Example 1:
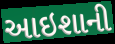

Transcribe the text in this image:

આઇશાની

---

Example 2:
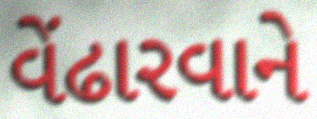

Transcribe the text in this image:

વેંઢારવાને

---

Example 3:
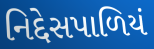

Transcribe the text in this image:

નિદ્દેસપાળિયં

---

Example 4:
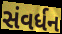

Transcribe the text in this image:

સંવર્ધન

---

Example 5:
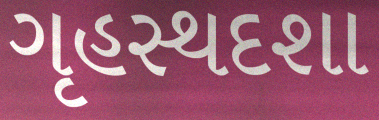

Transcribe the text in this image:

ગૃહસ્થદશા